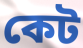
কেট